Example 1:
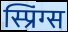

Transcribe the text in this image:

स्प्रिंग्स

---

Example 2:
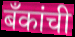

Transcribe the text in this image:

बँकांची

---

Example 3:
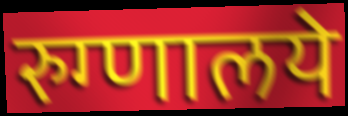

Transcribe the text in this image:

रुग्णालये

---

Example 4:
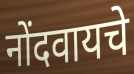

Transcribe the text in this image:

नोंदवायचे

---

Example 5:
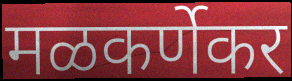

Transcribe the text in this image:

मळकर्णेकर